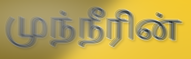
முந்நீரின்